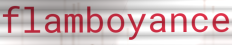
flamboyance